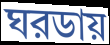
ঘরডায়